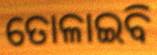
ତୋଳାଇବି